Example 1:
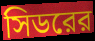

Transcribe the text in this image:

সিডরের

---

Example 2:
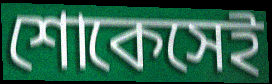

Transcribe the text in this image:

শোকেসেই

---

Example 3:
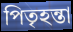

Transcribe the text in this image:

পিতৃহন্তা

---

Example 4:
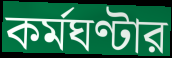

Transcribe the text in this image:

কর্মঘণ্টার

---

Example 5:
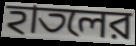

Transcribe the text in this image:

হাতলের